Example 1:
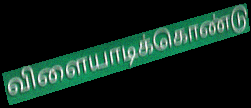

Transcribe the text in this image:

விளையாடிக்கொண்டு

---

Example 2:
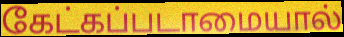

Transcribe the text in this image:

கேட்கப்படாமையால்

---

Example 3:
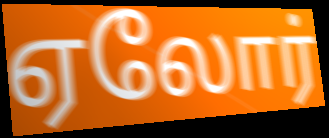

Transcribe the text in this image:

ஏலோர்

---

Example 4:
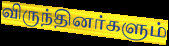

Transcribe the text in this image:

விருந்தினர்களும்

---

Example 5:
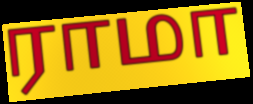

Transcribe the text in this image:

ராமா